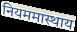
नियममास्थाय